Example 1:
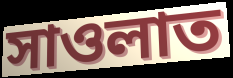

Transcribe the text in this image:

সাওলাত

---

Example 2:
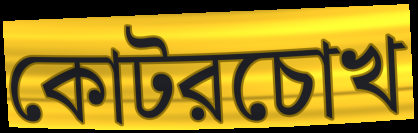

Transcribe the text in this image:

কোটরচোখ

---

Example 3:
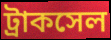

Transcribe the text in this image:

ট্রাকসেল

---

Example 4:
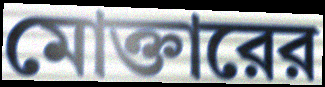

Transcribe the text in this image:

মোক্তারের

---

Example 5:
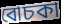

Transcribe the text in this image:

বোচকা